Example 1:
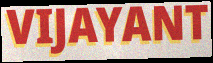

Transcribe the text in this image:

VIJAYANT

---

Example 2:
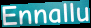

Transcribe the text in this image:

Ennallu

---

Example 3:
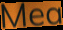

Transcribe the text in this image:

Mea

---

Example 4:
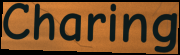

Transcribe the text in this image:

Charing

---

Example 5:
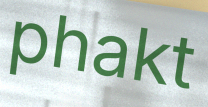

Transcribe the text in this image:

phakt